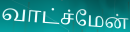
வாட்ச்மேன்